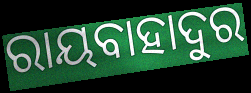
ରାୟବାହାଦୁର